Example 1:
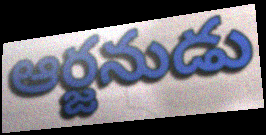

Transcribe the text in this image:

ఆర్జనుడు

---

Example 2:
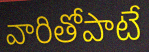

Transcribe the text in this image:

వారితోపాటే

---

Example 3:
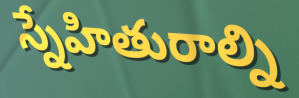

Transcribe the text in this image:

స్నేహితురాల్ని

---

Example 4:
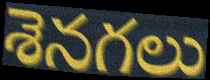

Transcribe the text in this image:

శెనగలు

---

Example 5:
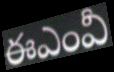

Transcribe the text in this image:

ఈఎంవీ